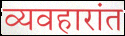
व्यवहारांत